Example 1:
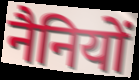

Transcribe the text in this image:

नैनियों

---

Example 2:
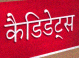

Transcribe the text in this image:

कैडिडेट्स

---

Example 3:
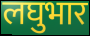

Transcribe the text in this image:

लघुभार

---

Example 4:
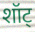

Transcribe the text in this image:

शॉट्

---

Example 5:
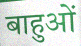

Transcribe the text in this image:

बाहुओं